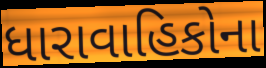
ધારાવાહિકોના